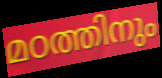
മഠത്തിനും